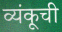
व्यंकूची